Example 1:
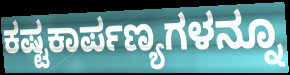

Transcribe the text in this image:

ಕಷ್ಟಕಾರ್ಪಣ್ಯಗಳನ್ನೂ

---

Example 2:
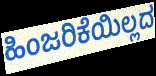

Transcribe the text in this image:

ಹಿಂಜರಿಕೆಯಿಲ್ಲದ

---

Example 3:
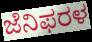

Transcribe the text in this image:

ಜೆನಿಫರಳ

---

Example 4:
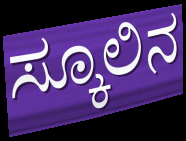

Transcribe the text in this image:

ಸ್ಕೂಲಿನ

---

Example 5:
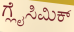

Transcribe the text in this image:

ಗ್ಲೈಸಿಮಿಕ್